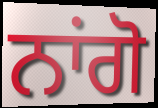
ਨਾਂਗੋ